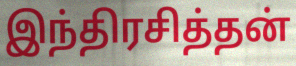
இந்திரசித்தன்